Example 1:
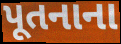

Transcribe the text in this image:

પૂતનાના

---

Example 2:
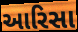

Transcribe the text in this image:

આરિસા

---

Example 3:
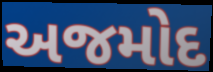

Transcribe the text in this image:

અજમોદ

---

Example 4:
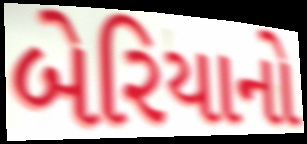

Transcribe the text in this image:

બેરિયાનો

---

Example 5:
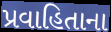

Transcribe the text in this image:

પ્રવાહિતાના